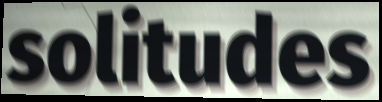
solitudes